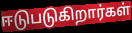
ஈடுபடுகிறார்கள்